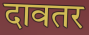
दावतर